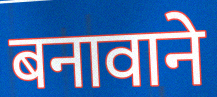
बनावाने